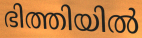
ഭിത്തിയിൽ